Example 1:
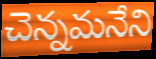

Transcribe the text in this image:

చెన్నమనేని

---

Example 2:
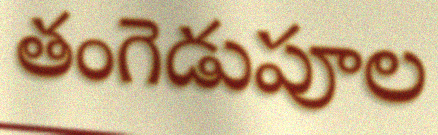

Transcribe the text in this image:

తంగెడుపూల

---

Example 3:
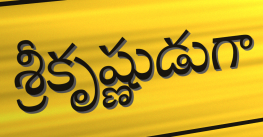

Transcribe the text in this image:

శ్రీకృష్ణుడుగా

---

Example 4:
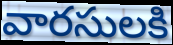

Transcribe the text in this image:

వారసులకి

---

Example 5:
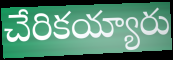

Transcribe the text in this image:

చేరికయ్యారు